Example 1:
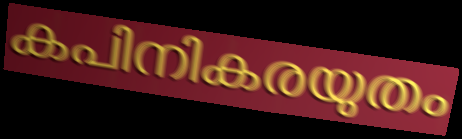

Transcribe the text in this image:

കപിനികരയുതം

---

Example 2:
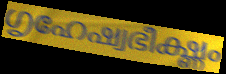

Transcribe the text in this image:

ഗൃഹേഷ്വഭീക്ഷ്ണം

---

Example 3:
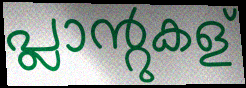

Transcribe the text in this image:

പ്ലാന്റുകള്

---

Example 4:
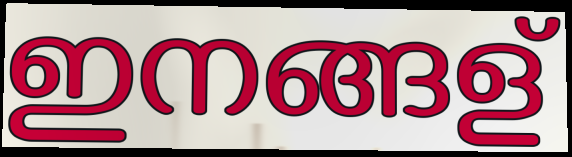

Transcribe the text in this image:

ഇനങ്ങള്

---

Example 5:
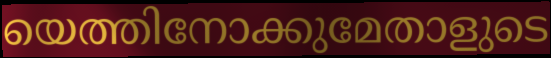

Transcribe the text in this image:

യെത്തിനോക്കുമേതാളുടെ